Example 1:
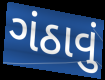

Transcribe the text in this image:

ગંઠાવું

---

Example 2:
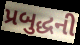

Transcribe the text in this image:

પ્રબુદ્ધની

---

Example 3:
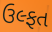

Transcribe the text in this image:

ઉલ્ફત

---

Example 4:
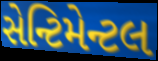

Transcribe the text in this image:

સેન્ટિમેન્ટલ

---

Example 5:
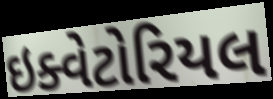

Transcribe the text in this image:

ઇક્વેટોરિયલ